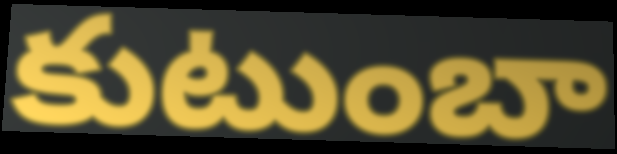
కుటుంబా